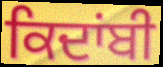
ਕਿਦਾਂਬੀ